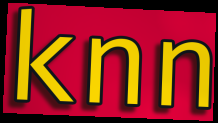
knn